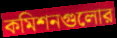
কমিশনগুলোর